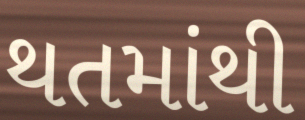
થતમાંથી